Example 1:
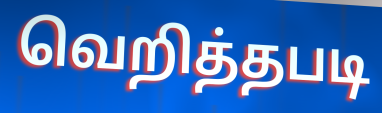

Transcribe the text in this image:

வெறித்தபடி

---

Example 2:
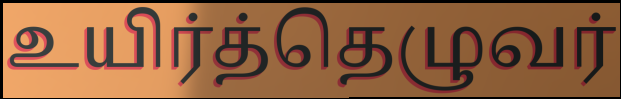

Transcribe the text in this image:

உயிர்த்தெழுவர்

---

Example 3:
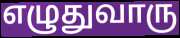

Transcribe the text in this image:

எழுதுவாரு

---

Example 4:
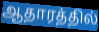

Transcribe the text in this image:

ஆதாரத்தில்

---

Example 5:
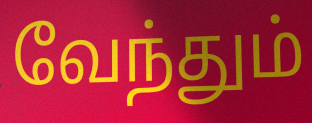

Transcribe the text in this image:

வேந்தும்